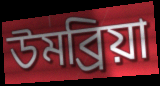
উমব্রিয়া